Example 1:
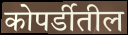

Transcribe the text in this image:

कोपर्डीतील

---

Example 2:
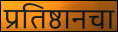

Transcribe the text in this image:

प्रतिष्ठानचा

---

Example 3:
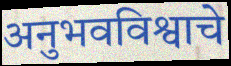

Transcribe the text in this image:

अनुभवविश्वाचे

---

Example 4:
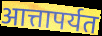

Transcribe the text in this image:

आत्तापर्यत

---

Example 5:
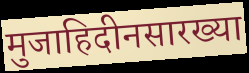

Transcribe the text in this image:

मुजाहिदीनसारख्या